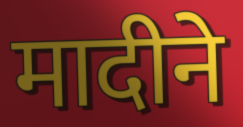
मादीने